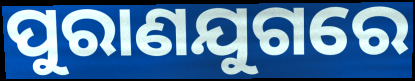
ପୁରାଣଯୁଗରେ